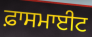
ਫ਼ਾਸਮਾਈਟ